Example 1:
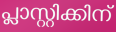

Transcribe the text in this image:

പ്ലാസ്റ്റിക്കിന്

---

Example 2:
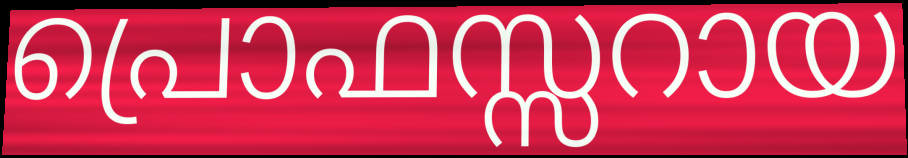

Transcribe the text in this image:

പ്രൊഫസ്സറായ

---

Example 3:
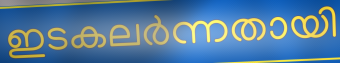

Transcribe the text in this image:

ഇടകലർന്നതായി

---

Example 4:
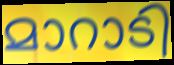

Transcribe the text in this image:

മാറാടി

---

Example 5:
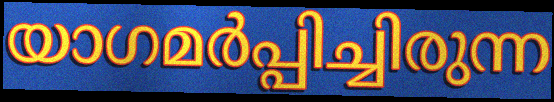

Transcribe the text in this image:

യാഗമർപ്പിച്ചിരുന്ന